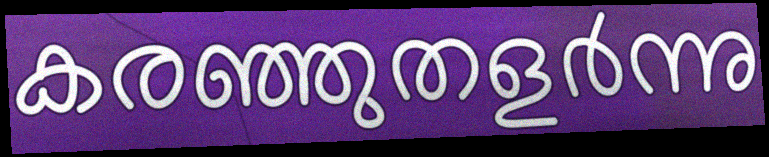
കരഞ്ഞുതളർന്നു